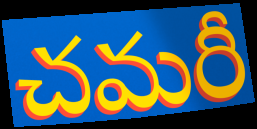
చమరీ